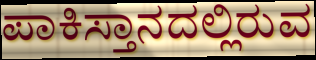
ಪಾಕಿಸ್ತಾನದಲ್ಲಿರುವ